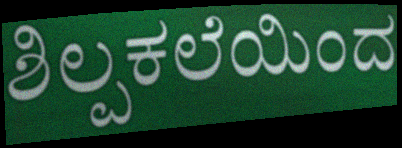
ಶಿಲ್ಪಕಲೆಯಿಂದ